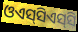
ଓଏସ୍‌ସିଏସ୍‌ସି